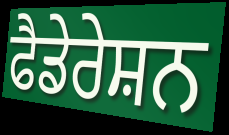
ਫੈਡੇਰੇਸ਼ਨ